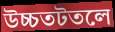
উচ্চতটতলে